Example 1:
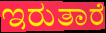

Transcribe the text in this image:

ಇರುತಾರೆ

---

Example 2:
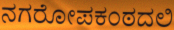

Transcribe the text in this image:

ನಗರೋಪಕಂಠದಲಿ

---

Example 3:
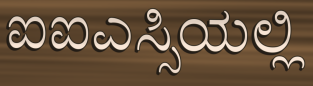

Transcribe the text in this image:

ಐಐಎಸ್ಸಿಯಲ್ಲಿ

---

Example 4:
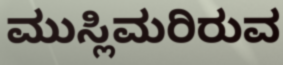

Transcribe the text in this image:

ಮುಸ್ಲಿಮರಿರುವ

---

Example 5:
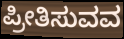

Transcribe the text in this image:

ಪ್ರೀತಿಸುವವ